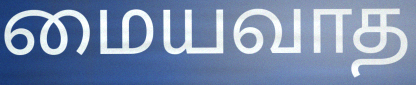
மையவாத